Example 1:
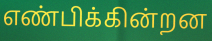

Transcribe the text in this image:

எண்பிக்கின்றன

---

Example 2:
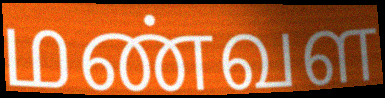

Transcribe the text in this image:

மண்வள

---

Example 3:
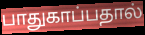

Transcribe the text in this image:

பாதுகாப்பதால்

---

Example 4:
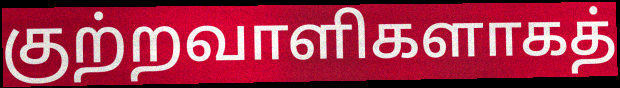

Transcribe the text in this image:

குற்றவாளிகளாகத்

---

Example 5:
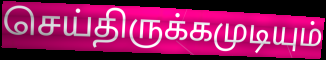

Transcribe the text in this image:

செய்திருக்கமுடியும்